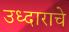
उध्दाराचे